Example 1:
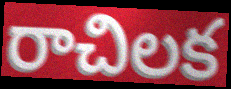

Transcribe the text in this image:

రాచిలక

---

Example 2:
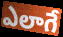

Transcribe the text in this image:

ఎలాగే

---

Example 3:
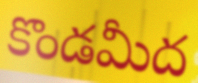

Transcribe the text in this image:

కొండమీద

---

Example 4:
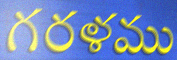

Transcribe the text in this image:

గరళము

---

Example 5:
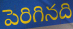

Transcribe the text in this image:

పెరిగినది